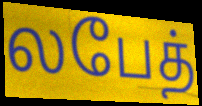
லபேத்